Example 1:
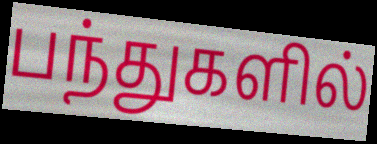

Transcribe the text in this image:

பந்துகளில்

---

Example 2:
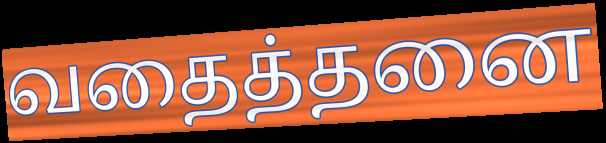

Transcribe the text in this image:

வதைத்தனை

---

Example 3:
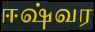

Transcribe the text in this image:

ஈஷ்வர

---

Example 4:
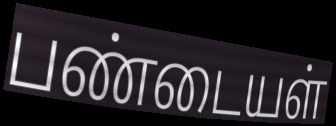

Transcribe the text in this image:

பண்டையள்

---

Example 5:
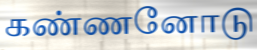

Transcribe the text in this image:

கண்ணனோடு